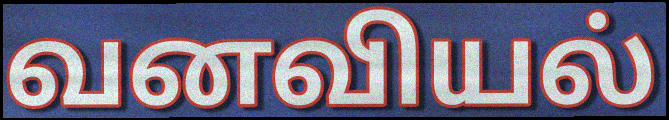
வனவியல்